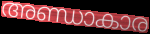
അണ്ഡാകാര